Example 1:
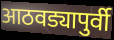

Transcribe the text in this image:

आठवड्यापुर्वी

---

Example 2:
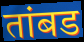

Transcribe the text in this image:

तांबड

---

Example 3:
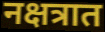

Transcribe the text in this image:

नक्षत्रात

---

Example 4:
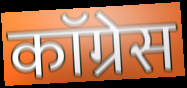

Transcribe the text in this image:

कॉग्रेस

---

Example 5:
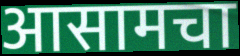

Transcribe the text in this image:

आसामचा